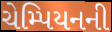
ચેમ્પિયનની